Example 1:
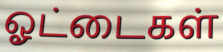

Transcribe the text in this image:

ஓட்டைகள்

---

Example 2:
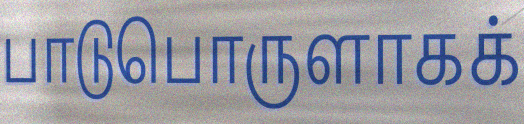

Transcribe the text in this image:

பாடுபொருளாகக்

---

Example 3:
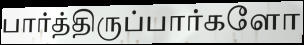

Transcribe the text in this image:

பார்த்திருப்பார்களோ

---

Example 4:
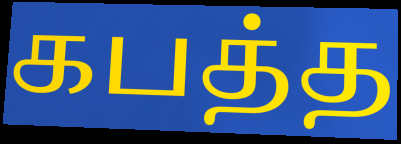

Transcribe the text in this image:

கபத்த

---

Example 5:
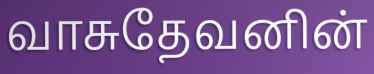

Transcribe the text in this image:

வாசுதேவனின்